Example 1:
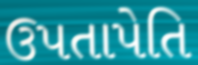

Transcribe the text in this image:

ઉપતાપેતિ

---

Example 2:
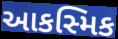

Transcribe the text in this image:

આકસ્મિક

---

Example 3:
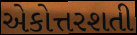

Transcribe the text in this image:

એકોત્તરશતી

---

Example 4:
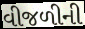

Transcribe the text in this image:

વીજળીની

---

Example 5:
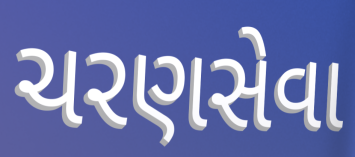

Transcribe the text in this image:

ચરણસેવા